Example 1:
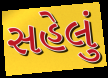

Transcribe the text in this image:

સહેલું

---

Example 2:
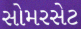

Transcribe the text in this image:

સોમરસેટ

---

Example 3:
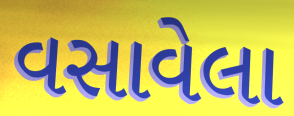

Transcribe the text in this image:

વસાવેલા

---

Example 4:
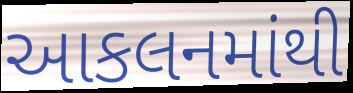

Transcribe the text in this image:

આકલનમાંથી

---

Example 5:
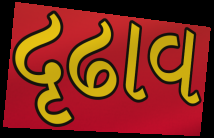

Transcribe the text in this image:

દૃઢાવ